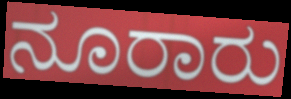
ನೂರಾರು